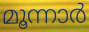
മൂന്നാർ